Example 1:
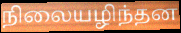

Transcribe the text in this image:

நிலையழிந்தன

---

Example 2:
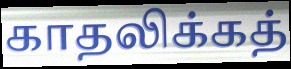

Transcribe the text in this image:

காதலிக்கத்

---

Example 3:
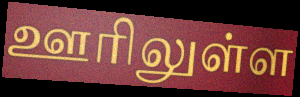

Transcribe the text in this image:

ஊரிலுள்ள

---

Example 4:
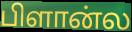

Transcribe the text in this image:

பிளான்ல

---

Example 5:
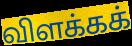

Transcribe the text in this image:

விளக்கக்